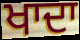
ਖਾਦਾ